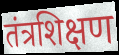
तंत्रशिक्षण